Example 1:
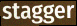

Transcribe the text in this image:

stagger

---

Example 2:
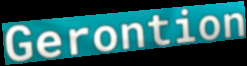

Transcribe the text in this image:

Gerontion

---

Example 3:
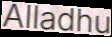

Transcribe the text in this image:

Alladhu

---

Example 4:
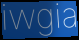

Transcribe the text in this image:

iwgia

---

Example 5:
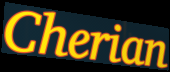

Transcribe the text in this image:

Cherian